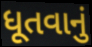
ધૂતવાનું